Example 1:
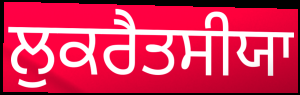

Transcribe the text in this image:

ਲੁਕਰੈਤਸੀਯਾ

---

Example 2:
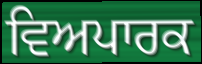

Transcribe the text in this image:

ਵਿਅਪਾਰਕ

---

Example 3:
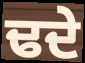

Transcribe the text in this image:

ਢਦੇ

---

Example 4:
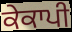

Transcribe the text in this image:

ਕੇਕਾਪੀ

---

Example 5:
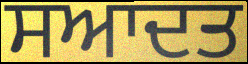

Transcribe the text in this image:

ਸਆਦਤ